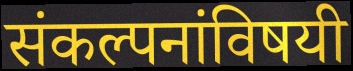
संकल्पनांविषयी